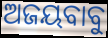
ଅଜୟବାବୁ